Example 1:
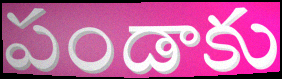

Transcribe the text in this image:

పండాకు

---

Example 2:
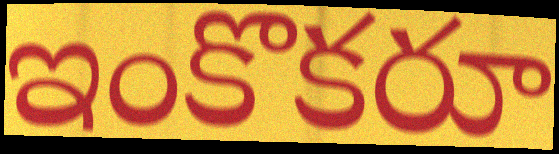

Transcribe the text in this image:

ఇంకొకరూ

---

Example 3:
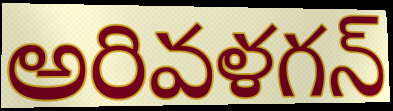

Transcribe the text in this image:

అరివళగన్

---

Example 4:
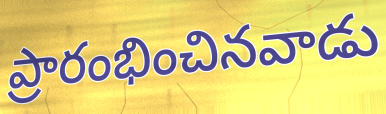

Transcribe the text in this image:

ప్రారంభించినవాడు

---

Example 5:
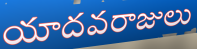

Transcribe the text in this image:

యాదవరాజులు